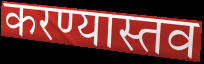
करण्यास्तव